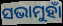
ସଭାମୁହାଁ